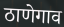
ठाणेगाव